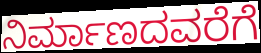
ನಿರ್ಮಾಣದವರೆಗೆ